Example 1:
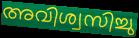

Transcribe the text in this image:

അവിശ്വസിച്ചു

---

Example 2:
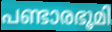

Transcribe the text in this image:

പണ്ടാരഭൂമി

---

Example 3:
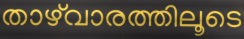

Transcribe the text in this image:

താഴ്‌വാരത്തിലൂടെ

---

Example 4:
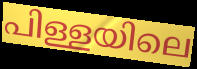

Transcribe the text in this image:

പിള്ളയിലെ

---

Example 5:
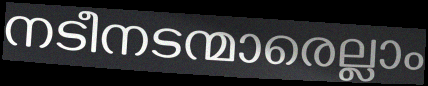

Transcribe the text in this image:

നടീനടന്മാരെല്ലാം